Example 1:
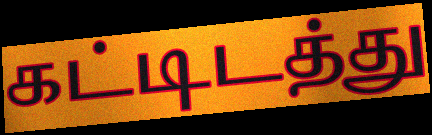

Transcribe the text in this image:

கட்டிடத்து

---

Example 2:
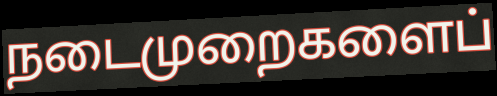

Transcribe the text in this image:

நடைமுறைகளைப்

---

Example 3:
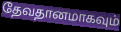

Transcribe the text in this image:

தேவதானமாகவும்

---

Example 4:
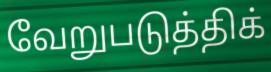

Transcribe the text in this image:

வேறுபடுத்திக்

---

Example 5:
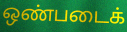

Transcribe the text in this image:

ஒண்படைக்